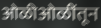
ओळीओळींतून